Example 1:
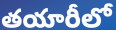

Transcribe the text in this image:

తయారీలో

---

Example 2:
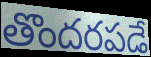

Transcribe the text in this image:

తొందరపడే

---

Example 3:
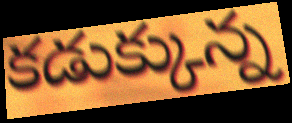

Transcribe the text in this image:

కడుక్కున్న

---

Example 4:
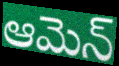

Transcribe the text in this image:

ఆమెన్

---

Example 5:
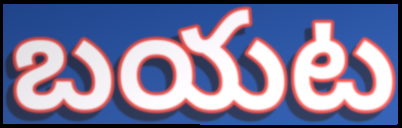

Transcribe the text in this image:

బయట